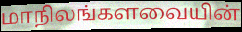
மாநிலங்களவையின்